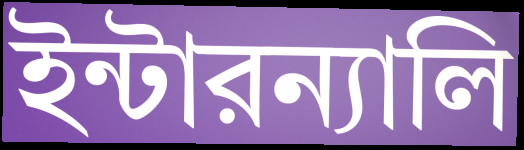
ইন্টারন্যালি